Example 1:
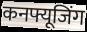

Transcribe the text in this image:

कनफ्यूजिंग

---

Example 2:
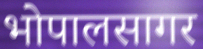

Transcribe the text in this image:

भोपालसागर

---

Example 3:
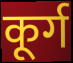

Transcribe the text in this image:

कूर्ग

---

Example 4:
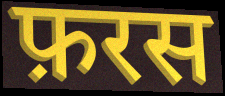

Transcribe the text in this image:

फ़रस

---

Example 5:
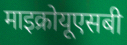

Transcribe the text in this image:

माइक्रोयूएसबी